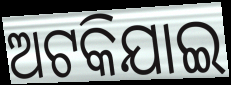
ଅଟକିଯାଇ